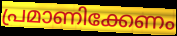
പ്രമാണിക്കേണം